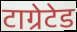
टाग्रेटेड